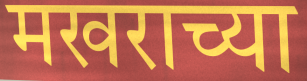
मखराच्या